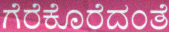
ಗೆರೆಕೊರೆದಂತೆ